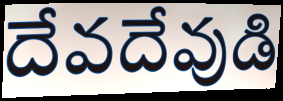
దేవదేవుడి